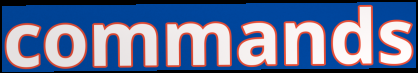
commands